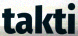
takti